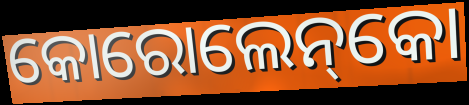
କୋରୋଲେନ୍‌କୋ